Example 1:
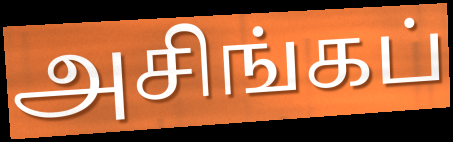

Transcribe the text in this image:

அசிங்கப்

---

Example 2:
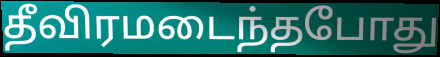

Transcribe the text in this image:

தீவிரமடைந்தபோது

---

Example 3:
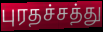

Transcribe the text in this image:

புரதச்சத்து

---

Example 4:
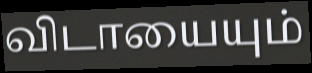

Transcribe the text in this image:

விடாயையும்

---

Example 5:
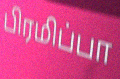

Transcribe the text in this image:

பிரமிப்பா